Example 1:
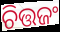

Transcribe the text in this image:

ଚିତ୍ତଜଂ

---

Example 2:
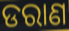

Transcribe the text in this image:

ଡରାଣ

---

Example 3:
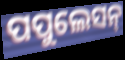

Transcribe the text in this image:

ପପୁଲେସନ୍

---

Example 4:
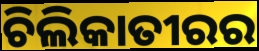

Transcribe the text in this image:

ଚିଲିକାତୀରର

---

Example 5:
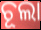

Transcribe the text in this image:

ଚୂଲା